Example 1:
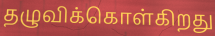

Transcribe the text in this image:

தழுவிக்கொள்கிறது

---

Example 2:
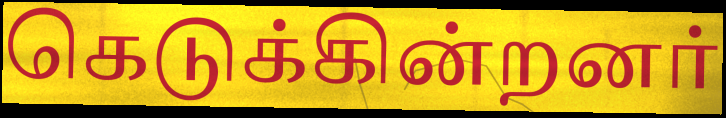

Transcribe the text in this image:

கெடுக்கின்றனர்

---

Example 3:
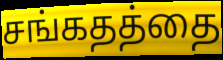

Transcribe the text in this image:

சங்கதத்தை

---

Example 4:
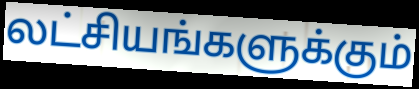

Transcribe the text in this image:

லட்சியங்களுக்கும்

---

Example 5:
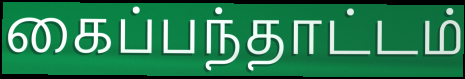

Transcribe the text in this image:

கைப்பந்தாட்டம்